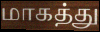
மாகத்து